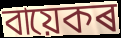
বায়েকৰ